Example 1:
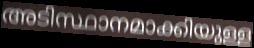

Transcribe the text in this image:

അടിസ്ഥാനമാക്കിയുള്ള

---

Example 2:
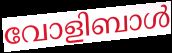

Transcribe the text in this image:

വോളിബാൾ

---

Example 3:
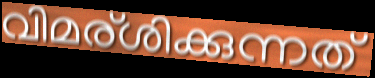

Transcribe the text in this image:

വിമര്ശിക്കുന്നത്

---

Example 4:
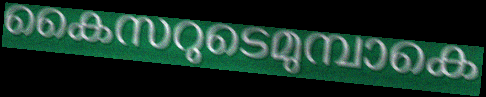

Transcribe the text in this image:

കൈസറുടെമുമ്പാകെ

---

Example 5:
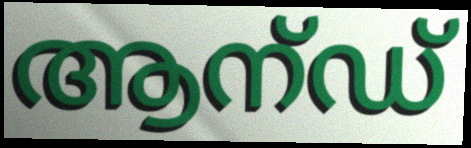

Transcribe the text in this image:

ആന്ഡ്